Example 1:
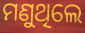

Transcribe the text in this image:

ମଣୁଥିଲେ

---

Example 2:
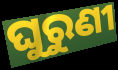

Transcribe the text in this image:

ଘୁରୁଣୀ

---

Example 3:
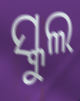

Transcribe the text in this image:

ସ୍କୁଲ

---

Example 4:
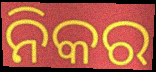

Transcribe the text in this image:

ନିକର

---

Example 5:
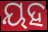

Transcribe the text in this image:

ୟହ